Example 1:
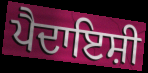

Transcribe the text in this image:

ਪੈਦਾਇਸ਼ੀ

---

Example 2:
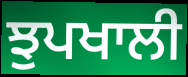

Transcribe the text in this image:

ਝੁਪਖਾਲੀ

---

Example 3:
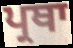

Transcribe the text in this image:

ਪ੍ਰਥਾ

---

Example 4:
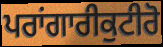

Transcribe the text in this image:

ਪਰਾਂਗਾਰੀਕੁਟੀਰੋ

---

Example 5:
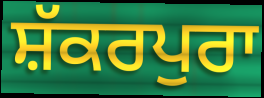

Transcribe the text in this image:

ਸ਼ੱਕਰਪੁਰਾ